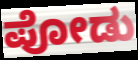
ಪೋಡು